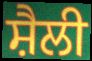
ਸ਼ੈਲੀ